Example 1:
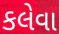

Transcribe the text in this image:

કલેવા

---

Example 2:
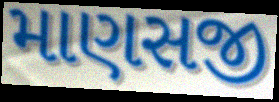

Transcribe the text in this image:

માણસજી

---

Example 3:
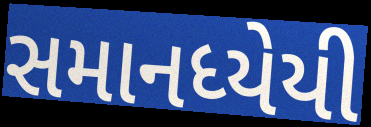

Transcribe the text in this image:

સમાનધ્યેયી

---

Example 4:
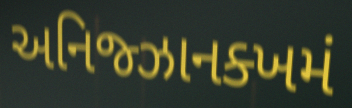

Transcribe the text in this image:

અનિજ્ઝાનક્ખમં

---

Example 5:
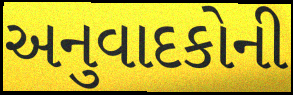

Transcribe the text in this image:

અનુવાદકોની